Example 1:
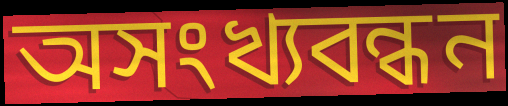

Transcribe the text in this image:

অসংখ্যবন্ধন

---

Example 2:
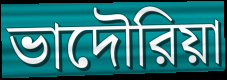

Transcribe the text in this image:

ভাদৌরিয়া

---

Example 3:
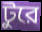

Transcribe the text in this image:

টুরে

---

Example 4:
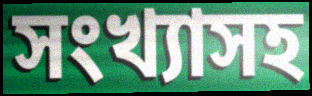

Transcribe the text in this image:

সংখ্যাসহ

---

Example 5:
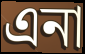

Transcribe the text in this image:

এনা